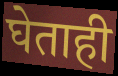
घेताही